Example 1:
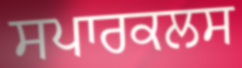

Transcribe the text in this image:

ਸਪਾਰਕਲਸ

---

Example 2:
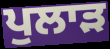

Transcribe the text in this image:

ਪੁਲਾੜ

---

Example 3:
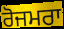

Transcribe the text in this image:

ਰੋਜਮਰਾ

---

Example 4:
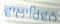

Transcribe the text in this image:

ਵਾਲਾਰਿਵਨ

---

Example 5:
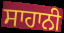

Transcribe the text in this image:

ਸਾਹਾਨੀ